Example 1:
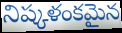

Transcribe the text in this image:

నిష్కళంకమైన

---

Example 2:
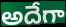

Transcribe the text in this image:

అదేగా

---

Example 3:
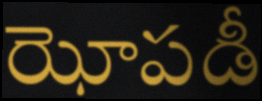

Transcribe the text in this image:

ఝోపడీ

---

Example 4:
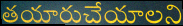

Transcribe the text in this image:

తయారుచేయాలని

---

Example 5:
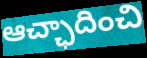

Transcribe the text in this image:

ఆచ్ఛాదించి